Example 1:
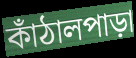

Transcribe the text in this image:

কাঁঠালপাড়া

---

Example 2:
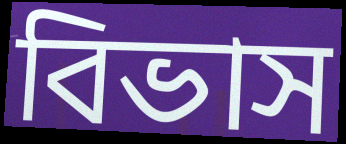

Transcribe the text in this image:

বিভাস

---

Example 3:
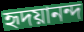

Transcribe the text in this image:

হৃদয়ানন্দ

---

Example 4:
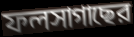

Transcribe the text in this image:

ফলসাগাছের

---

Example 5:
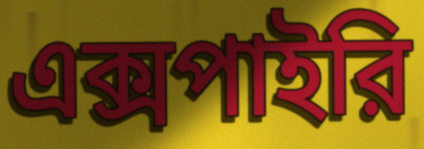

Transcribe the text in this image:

এক্সপাইরি